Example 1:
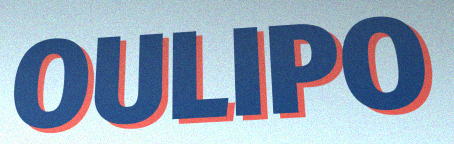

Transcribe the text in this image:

OULIPO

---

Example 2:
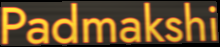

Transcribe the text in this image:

Padmakshi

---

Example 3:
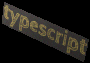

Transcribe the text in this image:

typescript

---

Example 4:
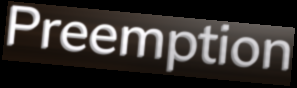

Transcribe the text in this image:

Preemption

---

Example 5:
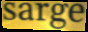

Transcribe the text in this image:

sarge